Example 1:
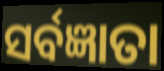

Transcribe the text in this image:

ସର୍ବଜ୍ଞାତା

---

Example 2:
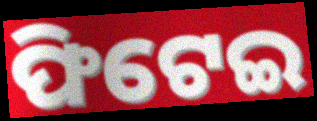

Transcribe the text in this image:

ଫିଟେଇ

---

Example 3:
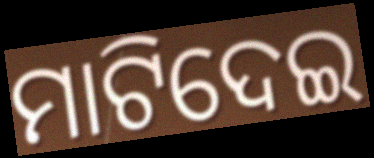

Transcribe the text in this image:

ମାଟିଦେଇ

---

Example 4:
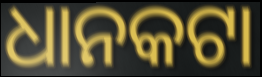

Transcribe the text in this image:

ଧାନକଟା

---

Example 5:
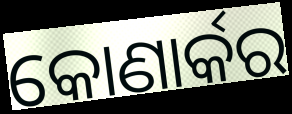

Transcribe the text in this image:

କୋଣାର୍କର